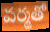
వర్మతో